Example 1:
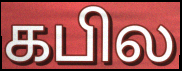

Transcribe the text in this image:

கபில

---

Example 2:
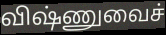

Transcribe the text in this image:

விஷ்ணுவைச்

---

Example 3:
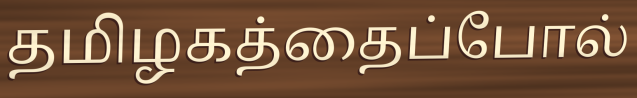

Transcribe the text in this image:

தமிழகத்தைப்போல்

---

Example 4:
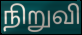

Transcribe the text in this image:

நிறுவி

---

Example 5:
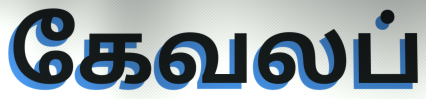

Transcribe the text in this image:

கேவலப்